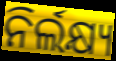
ନିର୍ଲକ୍ଷ୍ୟ